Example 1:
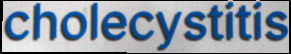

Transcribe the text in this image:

cholecystitis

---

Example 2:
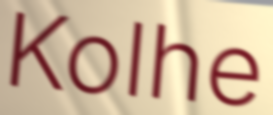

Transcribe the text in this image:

Kolhe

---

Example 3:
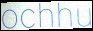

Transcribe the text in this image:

ochhu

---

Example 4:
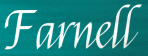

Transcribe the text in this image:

Farnell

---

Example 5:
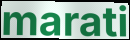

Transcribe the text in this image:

marati